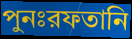
পুনঃরফতানি